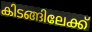
കിടങ്ങിലേക്ക്